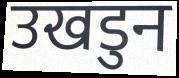
उखडुन